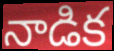
నాడిక